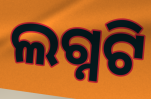
ଲଗ୍ନଟି